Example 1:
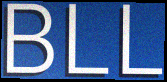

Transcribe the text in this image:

BLL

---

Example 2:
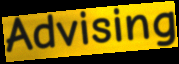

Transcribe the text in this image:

Advising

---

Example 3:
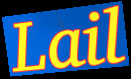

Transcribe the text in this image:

Lail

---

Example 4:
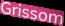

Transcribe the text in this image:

Grissom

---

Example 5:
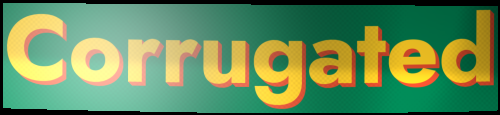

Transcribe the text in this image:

Corrugated